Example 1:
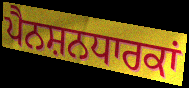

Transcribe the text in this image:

ਪੈਨਸ਼ਨਧਾਰਕਾਂ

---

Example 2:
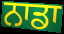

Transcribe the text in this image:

ਨਾਡਾ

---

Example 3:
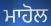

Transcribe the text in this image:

ਮਾਹੋਲ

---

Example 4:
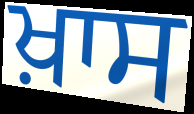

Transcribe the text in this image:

ਖ਼ਾਸ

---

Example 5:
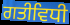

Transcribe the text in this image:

ਗਤੀਵਿਧੀ